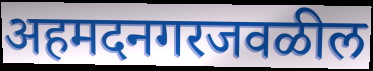
अहमदनगरजवळील